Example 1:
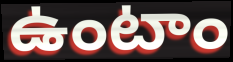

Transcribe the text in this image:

ఉంటాం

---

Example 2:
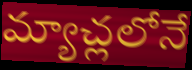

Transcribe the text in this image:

మ్యాచ్లలోనే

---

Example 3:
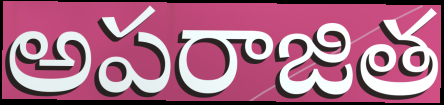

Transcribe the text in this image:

అపరాజిత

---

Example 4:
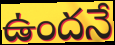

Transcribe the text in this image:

ఉందనే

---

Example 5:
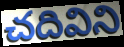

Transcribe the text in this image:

చదివిని